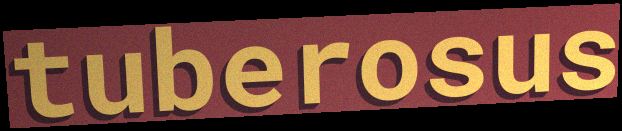
tuberosus